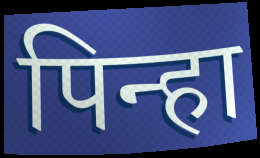
पिन्हा